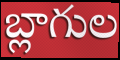
బ్లాగుల